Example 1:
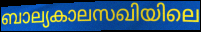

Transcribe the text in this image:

ബാല്യകാലസഖിയിലെ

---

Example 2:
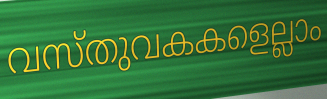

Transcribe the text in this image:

വസ്തുവകകളെല്ലാം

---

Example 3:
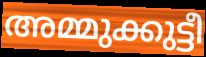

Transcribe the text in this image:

അമ്മുക്കുട്ടീ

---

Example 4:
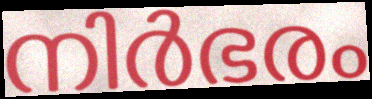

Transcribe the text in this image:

നിർഭരം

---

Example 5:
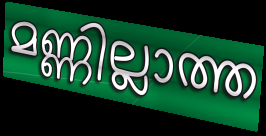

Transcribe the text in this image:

മണ്ണില്ലാത്ത